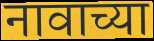
नावाच्या